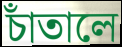
চাঁতালে